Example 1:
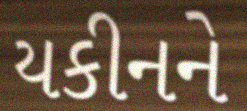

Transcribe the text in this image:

યકીનને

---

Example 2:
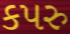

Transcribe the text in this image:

કપરુ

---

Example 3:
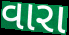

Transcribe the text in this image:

વારા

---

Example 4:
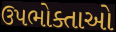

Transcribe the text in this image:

ઉપભોક્તાઓ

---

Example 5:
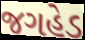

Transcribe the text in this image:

જગહેડ